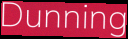
Dunning